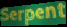
Serpent